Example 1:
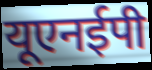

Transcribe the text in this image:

यूएनईपी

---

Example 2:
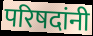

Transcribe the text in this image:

परिषदांनी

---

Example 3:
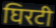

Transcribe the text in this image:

घिरटी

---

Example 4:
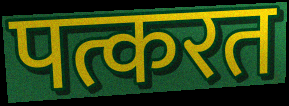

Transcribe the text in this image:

पत्करत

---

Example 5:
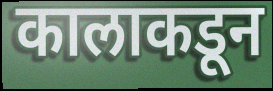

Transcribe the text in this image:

कालाकडून